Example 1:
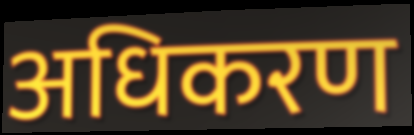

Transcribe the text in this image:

अधिकरण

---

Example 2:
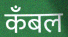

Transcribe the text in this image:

कँबल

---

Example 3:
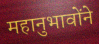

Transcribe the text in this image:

महानुभावोंने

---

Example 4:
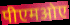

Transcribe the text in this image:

पीएमओए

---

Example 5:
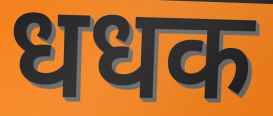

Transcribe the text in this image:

धधक